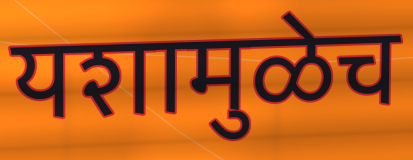
यशामुळेच